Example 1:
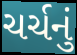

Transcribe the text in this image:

ચર્ચનું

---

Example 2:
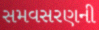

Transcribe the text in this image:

સમવસરણની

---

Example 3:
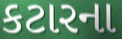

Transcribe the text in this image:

કટારના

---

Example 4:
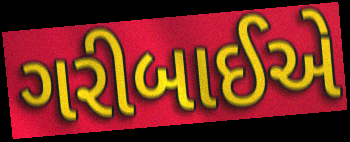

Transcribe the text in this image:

ગરીબાઈએ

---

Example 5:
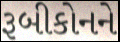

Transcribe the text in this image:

રૂબીકોનને